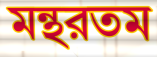
মন্থরতম